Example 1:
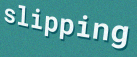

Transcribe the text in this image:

slipping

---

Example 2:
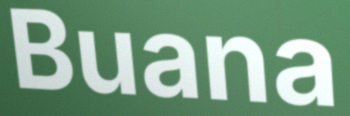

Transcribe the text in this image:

Buana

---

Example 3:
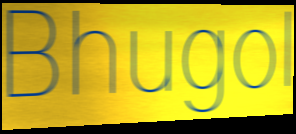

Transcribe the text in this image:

Bhugol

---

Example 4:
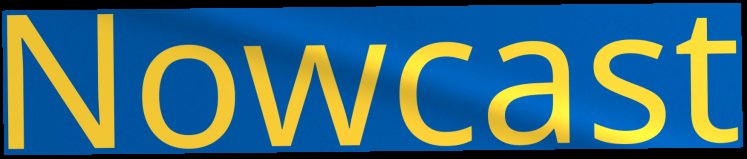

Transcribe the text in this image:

Nowcast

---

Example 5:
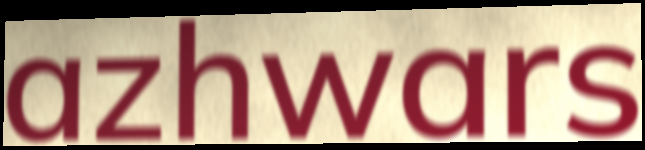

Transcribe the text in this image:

azhwars